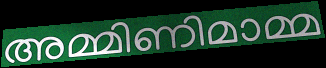
അമ്മിണിമാമ്മ